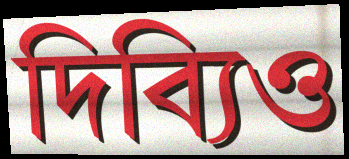
দিব্যিও